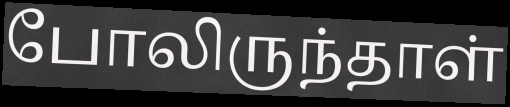
போலிருந்தாள்